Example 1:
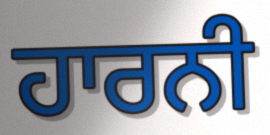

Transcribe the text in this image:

ਹਾਰਨੀ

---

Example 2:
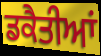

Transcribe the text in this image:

ਡਕੈਤੀਆਂ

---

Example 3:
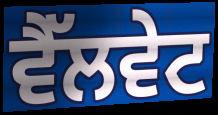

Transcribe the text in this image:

ਵੈੱਲਵੇਟ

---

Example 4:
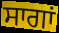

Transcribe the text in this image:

ਸਾਗਾਂ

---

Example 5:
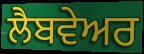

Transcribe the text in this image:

ਲੈਬਵੇਅਰ